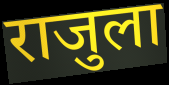
राजुला